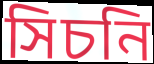
সিচনি